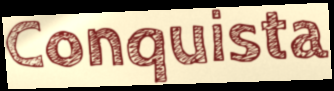
Conquista